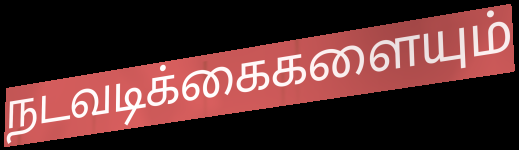
நடவடிக்கைகளையும்